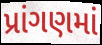
પ્રાંગણમાં